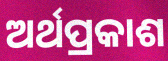
ଅର୍ଥପ୍ରକାଶ